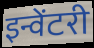
इन्वेंटरी